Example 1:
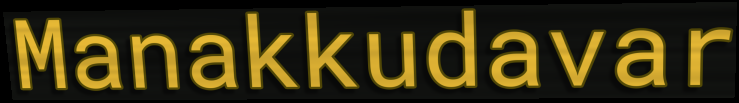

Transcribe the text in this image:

Manakkudavar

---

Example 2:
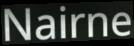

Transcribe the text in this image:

Nairne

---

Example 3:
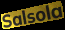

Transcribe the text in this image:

Salsola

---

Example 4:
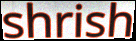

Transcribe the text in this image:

shrish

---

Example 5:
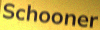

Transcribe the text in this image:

Schooner